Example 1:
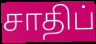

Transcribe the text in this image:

சாதிப்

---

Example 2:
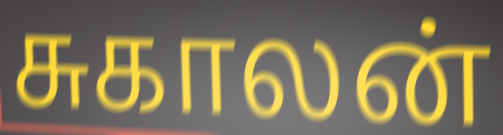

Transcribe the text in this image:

சுகாலன்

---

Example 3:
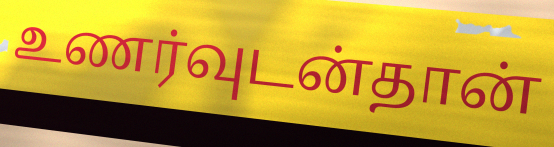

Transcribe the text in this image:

உணர்வுடன்தான்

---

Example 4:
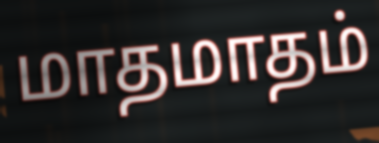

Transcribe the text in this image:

மாதமாதம்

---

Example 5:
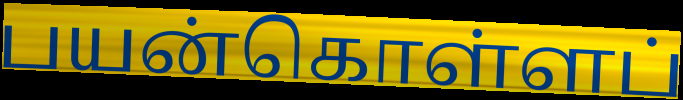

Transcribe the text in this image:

பயன்கொள்ளப்